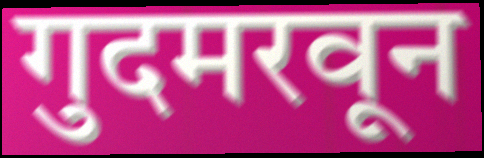
गुदमरवून